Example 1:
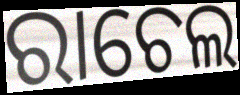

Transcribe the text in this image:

ରାଚେଲ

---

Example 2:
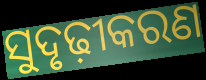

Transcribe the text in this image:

ସୁଦୃଢ଼ୀକରଣ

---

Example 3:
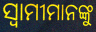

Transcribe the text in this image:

ସ୍ବାମୀମାନଙ୍କୁ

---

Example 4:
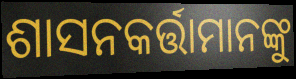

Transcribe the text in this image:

ଶାସନକର୍ତ୍ତାମାନଙ୍କୁ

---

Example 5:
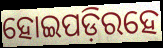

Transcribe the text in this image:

ହୋଇପଡ଼ିରହେ